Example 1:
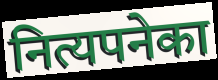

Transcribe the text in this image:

नित्यपनेका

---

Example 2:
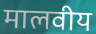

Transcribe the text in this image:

मालवीय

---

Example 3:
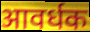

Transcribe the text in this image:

आवर्धक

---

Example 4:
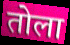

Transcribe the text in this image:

तोला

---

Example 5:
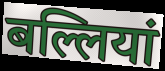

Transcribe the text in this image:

बल्लियां